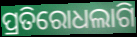
ପ୍ରତିରୋଧଲାଗି